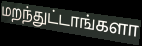
மறந்துட்டாங்களா